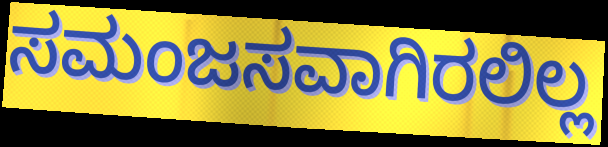
ಸಮಂಜಸವಾಗಿರಲಿಲ್ಲ